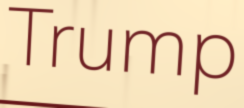
Trump